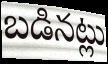
బడినట్లు